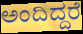
ಅಂದಿದ್ದರೆ